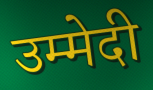
उम्मेदी